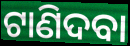
ଟାଣିଦବା